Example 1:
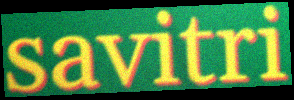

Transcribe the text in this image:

savitri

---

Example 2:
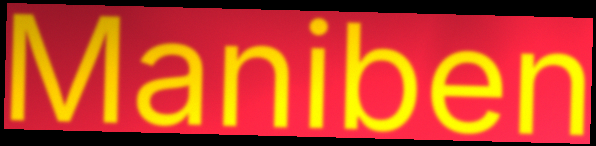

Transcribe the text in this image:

Maniben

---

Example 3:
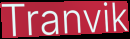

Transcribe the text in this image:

Tranvik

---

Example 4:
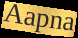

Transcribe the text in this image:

Aapna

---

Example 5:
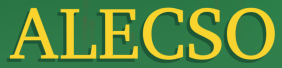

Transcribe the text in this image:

ALECSO